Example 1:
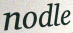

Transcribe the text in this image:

nodle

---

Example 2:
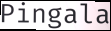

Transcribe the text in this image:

Pingala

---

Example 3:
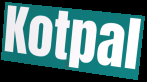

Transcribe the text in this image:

Kotpal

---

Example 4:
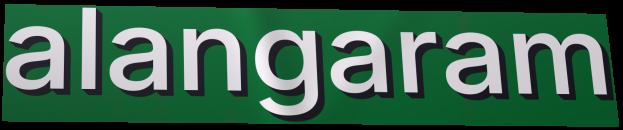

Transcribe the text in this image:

alangaram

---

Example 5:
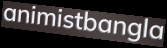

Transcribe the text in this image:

animistbangla